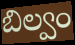
బిల్వం